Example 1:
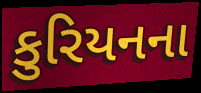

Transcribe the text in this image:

કુરિયનના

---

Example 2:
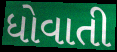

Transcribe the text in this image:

ધોવાતી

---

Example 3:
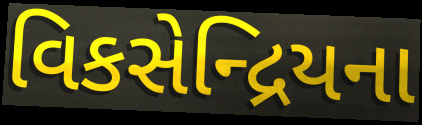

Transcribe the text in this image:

વિકસેન્દ્રિયના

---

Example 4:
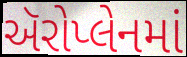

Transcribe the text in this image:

ઍરોપ્લેનમાં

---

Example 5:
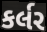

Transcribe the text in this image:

કર્લર